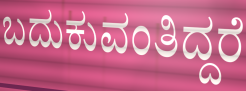
ಬದುಕುವಂತಿದ್ದರೆ